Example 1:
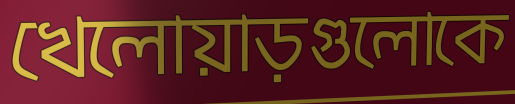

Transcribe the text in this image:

খেলোয়াড়গুলোকে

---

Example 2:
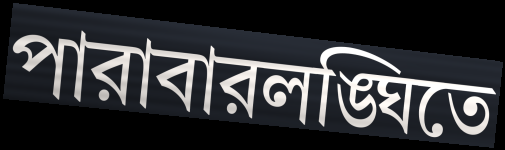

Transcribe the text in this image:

পারাবারলঙ্ঘিতে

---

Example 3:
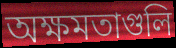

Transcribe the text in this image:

অক্ষমতাগুলি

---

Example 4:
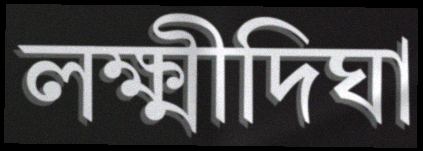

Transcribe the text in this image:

লক্ষ্মীদিঘা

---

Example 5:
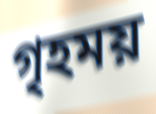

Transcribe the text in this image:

গৃহময়